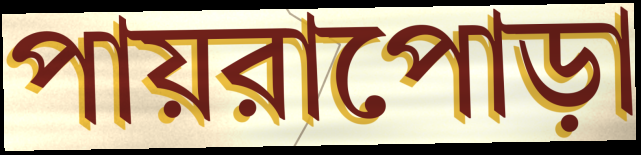
পায়রাপোড়া